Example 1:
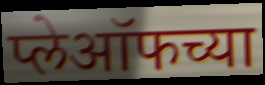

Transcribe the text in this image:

प्लेऑफच्या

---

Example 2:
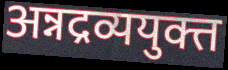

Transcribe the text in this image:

अन्नद्रव्ययुक्त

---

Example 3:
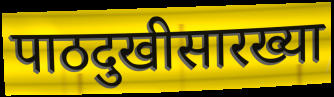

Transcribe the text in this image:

पाठदुखीसारख्या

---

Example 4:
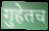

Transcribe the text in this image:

गुहेतच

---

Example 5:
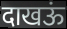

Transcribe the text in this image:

दाखऊं